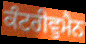
ਕੰਟਰੀਵੁਮੈਨ